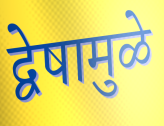
द्वेषामुळे